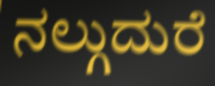
ನಲ್ಗುದುರೆ